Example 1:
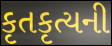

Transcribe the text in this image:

કૃતકૃત્યની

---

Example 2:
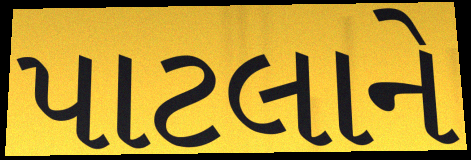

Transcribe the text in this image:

પાટલાને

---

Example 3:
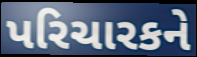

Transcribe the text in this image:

પરિચારકને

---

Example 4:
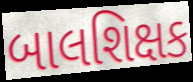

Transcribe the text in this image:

બાલશિક્ષક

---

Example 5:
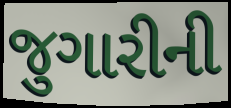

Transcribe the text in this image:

જુગારીની